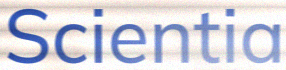
Scientia